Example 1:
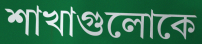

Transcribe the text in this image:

শাখাগুলোকে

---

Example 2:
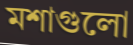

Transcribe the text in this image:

মশাগুলো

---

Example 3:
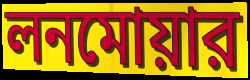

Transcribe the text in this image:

লনমোয়ার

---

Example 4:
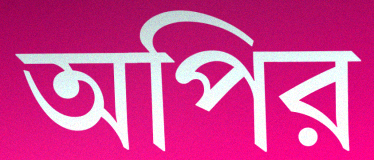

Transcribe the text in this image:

অপির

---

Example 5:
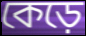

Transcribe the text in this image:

কেড়ে